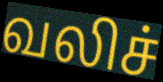
வலிச்